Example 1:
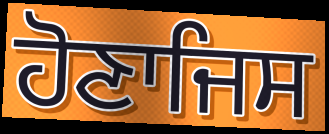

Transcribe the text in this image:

ਹੋਣਾਜਿਸ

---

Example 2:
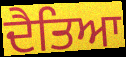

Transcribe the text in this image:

ਦੈਤਿਆ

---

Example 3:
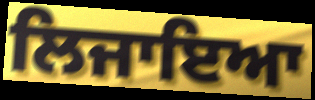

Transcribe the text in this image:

ਲਿਜਾਇਆ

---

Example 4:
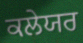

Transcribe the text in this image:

ਕਲੇਯਰ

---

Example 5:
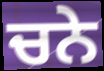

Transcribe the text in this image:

ਚਨੇ